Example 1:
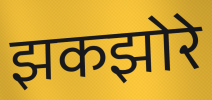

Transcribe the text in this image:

झकझोरे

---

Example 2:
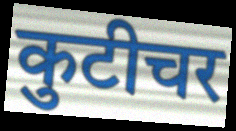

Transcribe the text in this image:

कुटीचर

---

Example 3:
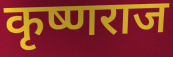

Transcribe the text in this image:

कृष्णराज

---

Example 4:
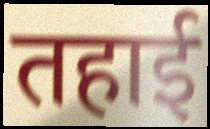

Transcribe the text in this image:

तहाई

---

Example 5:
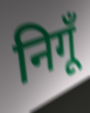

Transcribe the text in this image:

निगूँ